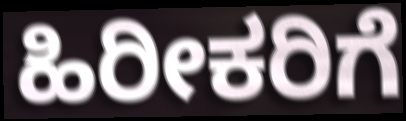
ಹಿರೀಕರಿಗೆ